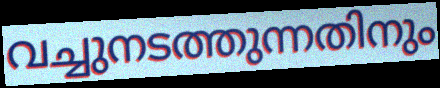
വച്ചുനടത്തുന്നതിനും